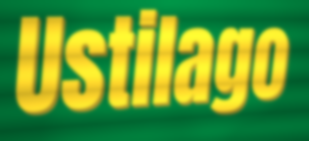
Ustilago